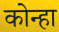
कोन्हा